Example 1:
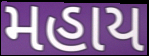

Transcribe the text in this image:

મહાય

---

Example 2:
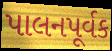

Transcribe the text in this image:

પાલનપૂર્વક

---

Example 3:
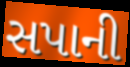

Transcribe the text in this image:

સપાની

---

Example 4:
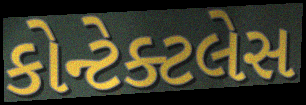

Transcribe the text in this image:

કોન્ટેક્ટલેસ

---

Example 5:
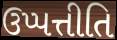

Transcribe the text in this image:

ઉપ્પત્તીતિ